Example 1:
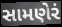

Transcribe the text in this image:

સામણેરં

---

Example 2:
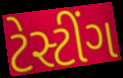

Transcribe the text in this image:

ટેસ્ટીંગ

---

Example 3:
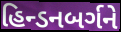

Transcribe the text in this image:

હિન્ડનબર્ગને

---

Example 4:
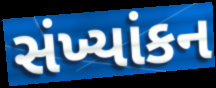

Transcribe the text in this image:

સંખ્યાંકન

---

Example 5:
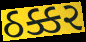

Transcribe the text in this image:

ઠક્કર